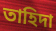
তাহিদা